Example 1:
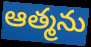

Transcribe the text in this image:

ఆత్మను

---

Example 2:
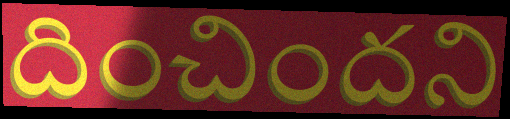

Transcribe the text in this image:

దించిందని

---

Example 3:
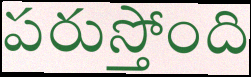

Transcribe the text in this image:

పరుస్తోంది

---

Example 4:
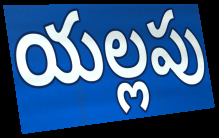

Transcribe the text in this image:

యల్లపు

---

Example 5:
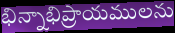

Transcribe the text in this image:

భిన్నాభిప్రాయములను